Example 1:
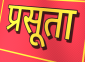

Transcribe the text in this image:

प्रसूता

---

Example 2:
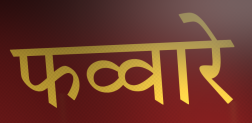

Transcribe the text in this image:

फव्वारे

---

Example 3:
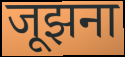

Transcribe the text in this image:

जूझना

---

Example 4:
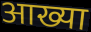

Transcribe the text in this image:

आख्या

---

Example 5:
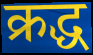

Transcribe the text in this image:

क्रद्ध